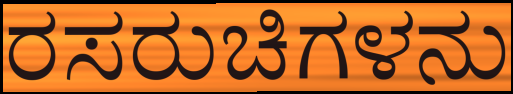
ರಸರುಚಿಗಳನು